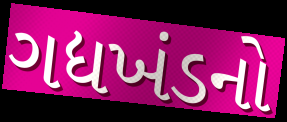
ગદ્યખંડનો